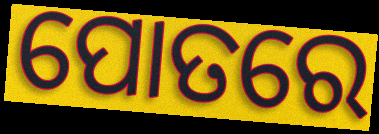
ପୋତରେ